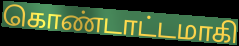
கொண்டாட்டமாகி